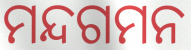
ମନ୍ଦଗମନ